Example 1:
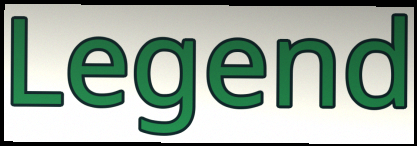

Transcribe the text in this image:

Legend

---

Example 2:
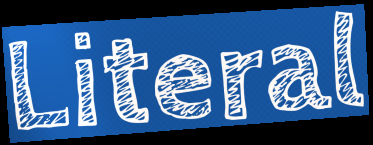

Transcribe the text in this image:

Literal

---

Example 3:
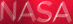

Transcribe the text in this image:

NASA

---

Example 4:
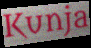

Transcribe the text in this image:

Kunja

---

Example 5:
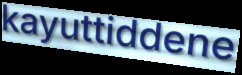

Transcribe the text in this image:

kayuttiddene